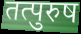
तत्पुरुष